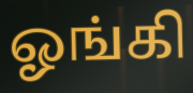
ஓங்கி